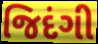
જિદંગી